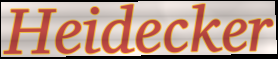
Heidecker